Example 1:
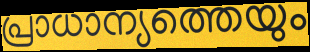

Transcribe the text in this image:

പ്രാധാന്യത്തെയും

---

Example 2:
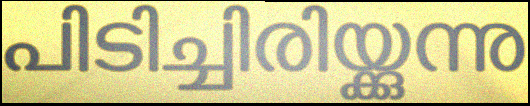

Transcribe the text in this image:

പിടിച്ചിരിയ്ക്കുന്നു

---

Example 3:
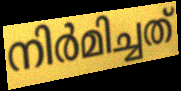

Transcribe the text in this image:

നിർമിച്ചത്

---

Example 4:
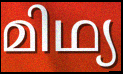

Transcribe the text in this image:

മിഥ്യ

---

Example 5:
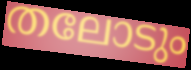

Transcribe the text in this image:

തലോടും